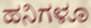
ಹನಿಗಳೂ